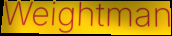
Weightman